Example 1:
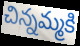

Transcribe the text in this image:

చిన్నమ్మకి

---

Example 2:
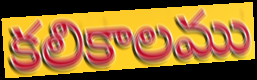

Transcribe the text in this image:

కలికాలము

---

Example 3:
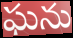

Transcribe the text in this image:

ఘను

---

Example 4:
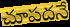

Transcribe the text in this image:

చూపదనే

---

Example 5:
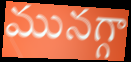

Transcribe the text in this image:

మునగ్గా